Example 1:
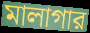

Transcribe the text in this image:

মালাগার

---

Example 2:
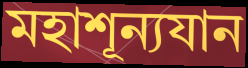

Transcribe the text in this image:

মহাশূন্যযান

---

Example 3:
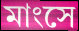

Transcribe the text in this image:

মাংসে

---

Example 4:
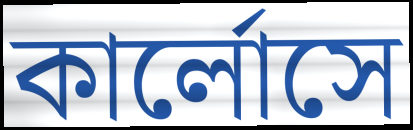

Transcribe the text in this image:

কার্লোসে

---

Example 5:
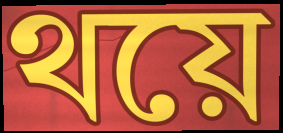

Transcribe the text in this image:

থয়ে